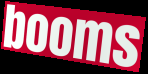
booms